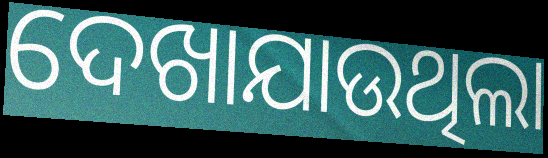
ଦେଖାଯାଉଥିଲା